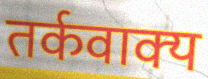
तर्कवाक्य